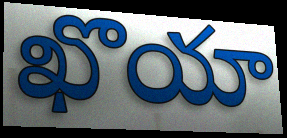
ఖొయా